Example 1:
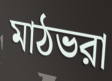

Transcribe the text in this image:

মাঠভরা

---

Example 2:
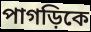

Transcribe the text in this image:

পাগড়িকে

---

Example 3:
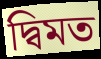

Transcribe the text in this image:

দ্বিমত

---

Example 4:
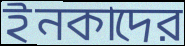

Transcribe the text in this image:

ইনকাদের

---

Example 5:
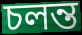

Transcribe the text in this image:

চলন্ত